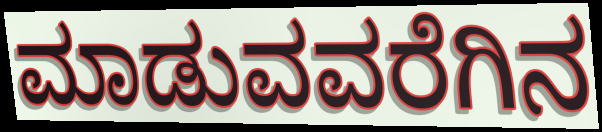
ಮಾಡುವವರೆಗಿನ